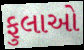
ફુલાઓ